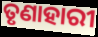
ତୃଣାହାରୀ